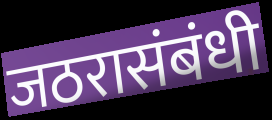
जठरासंबंधी